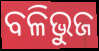
ବଳିଭୁଜ